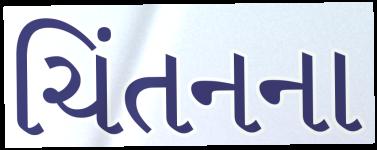
ચિંતનના